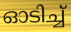
ഓടിച്ച്